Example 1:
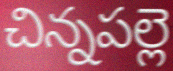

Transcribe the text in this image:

చిన్నపల్లె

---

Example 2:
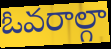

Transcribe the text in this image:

ఓవరాల్గా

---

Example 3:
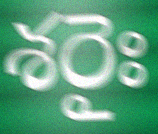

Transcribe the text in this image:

శరైః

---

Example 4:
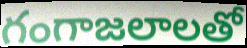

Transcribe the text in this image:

గంగాజలాలతో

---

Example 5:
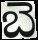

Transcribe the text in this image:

బె